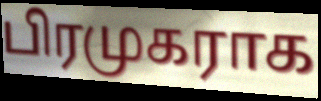
பிரமுகராக